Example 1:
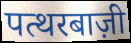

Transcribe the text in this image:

पत्थरबाज़ी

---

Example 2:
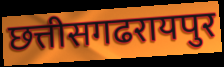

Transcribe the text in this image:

छत्तीसगढरायपुर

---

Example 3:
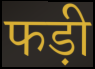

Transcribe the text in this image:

फड़ी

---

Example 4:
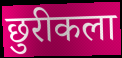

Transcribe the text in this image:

छुरीकला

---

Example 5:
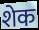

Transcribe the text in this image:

शेक